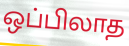
ஒப்பிலாத